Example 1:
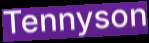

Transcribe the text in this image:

Tennyson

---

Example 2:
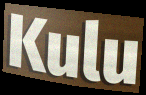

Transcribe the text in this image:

Kulu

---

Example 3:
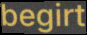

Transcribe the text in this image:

begirt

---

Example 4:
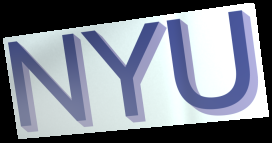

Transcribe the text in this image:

NYU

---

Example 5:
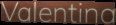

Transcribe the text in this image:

Valentina